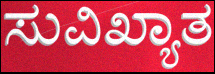
ಸುವಿಖ್ಯಾತ